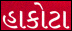
હાકોટા